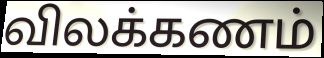
விலக்கணம்